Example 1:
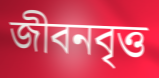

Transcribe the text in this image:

জীবনবৃত্ত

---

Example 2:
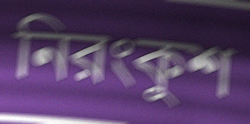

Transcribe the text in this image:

নিরংকুশ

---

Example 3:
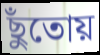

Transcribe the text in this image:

ছুঁতোয়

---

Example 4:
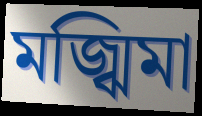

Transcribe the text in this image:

মজ্ঝিমা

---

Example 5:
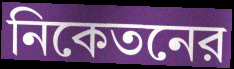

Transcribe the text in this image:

নিকেতনের